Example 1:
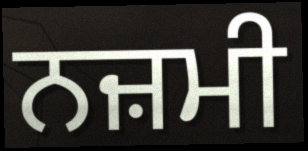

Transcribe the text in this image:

ਨਜ਼ਮੀ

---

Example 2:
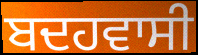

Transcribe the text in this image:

ਬਦਹਵਾਸੀ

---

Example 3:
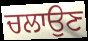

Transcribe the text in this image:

ਚਲਾਉਣ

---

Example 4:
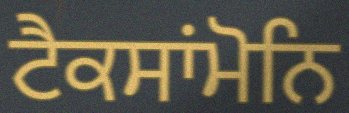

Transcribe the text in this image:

ਟੈਕਸਾਂਮੋਨਿ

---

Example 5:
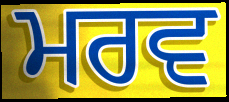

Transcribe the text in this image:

ਮਰਵ